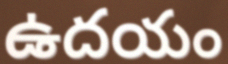
ఉదయం